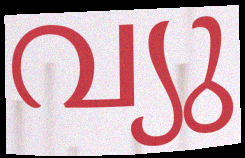
വ്യു